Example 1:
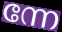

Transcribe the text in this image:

ന്നേ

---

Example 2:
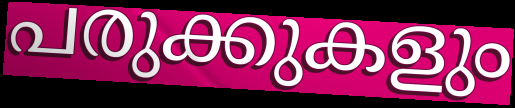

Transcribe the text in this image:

പരുക്കുകളും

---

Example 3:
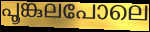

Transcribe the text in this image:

പൂങ്കുലപോലെ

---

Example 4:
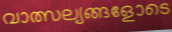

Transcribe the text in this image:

വാത്സല്യങ്ങളോടെ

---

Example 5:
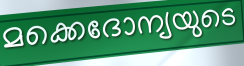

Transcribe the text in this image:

മക്കെദോന്യയുടെ